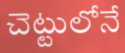
చెట్టులోనే